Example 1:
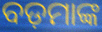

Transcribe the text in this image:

ବଡ଼ମାଙ୍କ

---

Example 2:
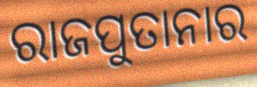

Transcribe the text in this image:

ରାଜପୁତାନାର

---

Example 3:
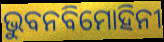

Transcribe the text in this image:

ଭୁବନବିମୋହିନୀ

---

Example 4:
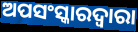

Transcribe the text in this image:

ଅପସଂସ୍କାରଦ୍ୱାରା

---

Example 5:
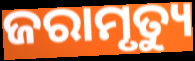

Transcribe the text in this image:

ଜରାମୃତ୍ୟୁ